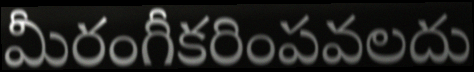
మీరంగీకరింపవలదు